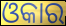
ଓକାର